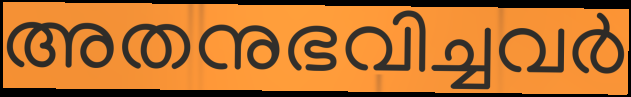
അതനുഭവിച്ചവർ